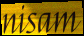
nisam